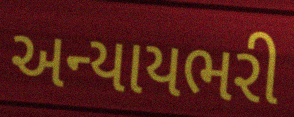
અન્યાયભરી